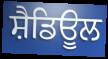
ਸ਼ੈਡਿਊਲ